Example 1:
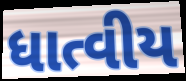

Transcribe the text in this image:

ધાત્વીય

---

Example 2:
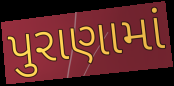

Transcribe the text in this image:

પુરાણામાં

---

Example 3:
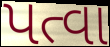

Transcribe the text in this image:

પત્વા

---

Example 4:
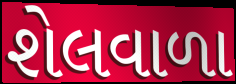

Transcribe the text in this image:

શેલવાળા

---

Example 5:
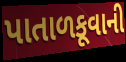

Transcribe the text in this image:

પાતાળકૂવાની